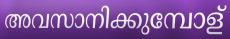
അവസാനിക്കുമ്പോള്